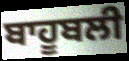
ਬਾਹੂਬਲੀ